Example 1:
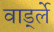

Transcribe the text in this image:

वार्ड्ले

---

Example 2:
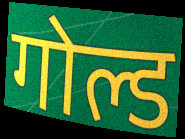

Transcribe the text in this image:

गोल्‍ड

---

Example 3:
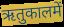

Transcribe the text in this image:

ऋतुकालमें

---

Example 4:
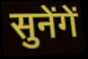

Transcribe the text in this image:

सुनेंगें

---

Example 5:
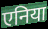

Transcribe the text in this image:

एनिया